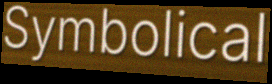
Symbolical